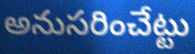
అనుసరించేట్టు